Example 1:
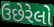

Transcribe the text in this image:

ઉછેરેલો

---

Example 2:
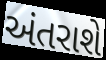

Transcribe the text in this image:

અંતરાશે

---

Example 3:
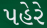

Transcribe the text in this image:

પહેરે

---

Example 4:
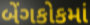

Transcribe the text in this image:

બેંગકોકમાં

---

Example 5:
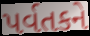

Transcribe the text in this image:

પર્વતકને